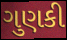
ગુણકી